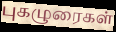
புகழுரைகள்